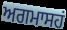
ਅਗਮਾਸਹਂ